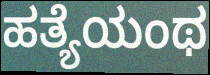
ಹತ್ಯೆಯಂಥ